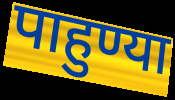
पाहुण्या